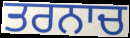
ਤਰਨਾਚ